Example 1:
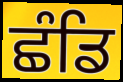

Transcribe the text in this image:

ਛੰਡਿ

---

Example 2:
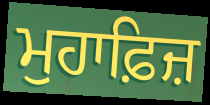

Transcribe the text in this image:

ਮੁਹਾਫ਼ਿਜ਼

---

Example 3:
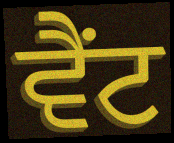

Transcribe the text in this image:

ਵੈਂਟ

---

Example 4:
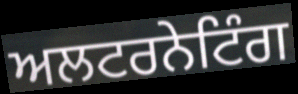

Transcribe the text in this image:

ਅਲਟਰਨੇਟਿੰਗ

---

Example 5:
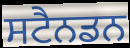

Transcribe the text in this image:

ਸਟੈਨਡਨ